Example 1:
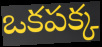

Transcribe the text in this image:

ఒకపక్క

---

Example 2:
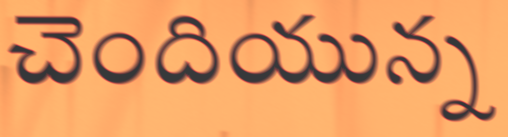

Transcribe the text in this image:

చెందియున్న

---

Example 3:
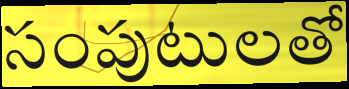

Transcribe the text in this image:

సంపుటులతో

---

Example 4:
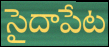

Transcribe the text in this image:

సైదాపేట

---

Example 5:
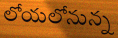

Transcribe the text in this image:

లోయలోనున్న